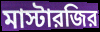
মাস্টারজির